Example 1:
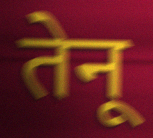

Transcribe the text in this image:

तेनू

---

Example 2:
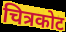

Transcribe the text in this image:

चित्रकोट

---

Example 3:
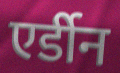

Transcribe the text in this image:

एर्डीन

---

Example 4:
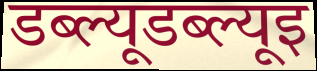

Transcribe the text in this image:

डब्ल्यूडब्ल्यूइ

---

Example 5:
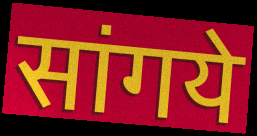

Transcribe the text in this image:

सांगये